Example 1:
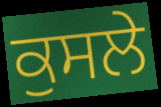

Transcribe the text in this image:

ਕੁਸਲੇ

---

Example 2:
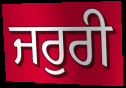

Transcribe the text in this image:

ਜਰੁਰੀ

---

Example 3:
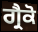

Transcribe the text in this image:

ਗ੍ਰੈਕੋ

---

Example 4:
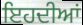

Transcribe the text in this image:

ਇਹਦੀਆਂ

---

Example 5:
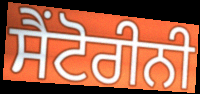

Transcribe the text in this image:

ਸੈਂਟੋਰੀਨੀ